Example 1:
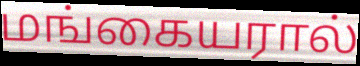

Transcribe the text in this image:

மங்கையரால்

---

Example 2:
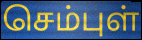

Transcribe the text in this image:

செம்புள்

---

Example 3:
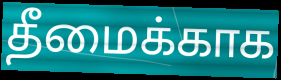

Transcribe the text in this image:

தீமைக்காக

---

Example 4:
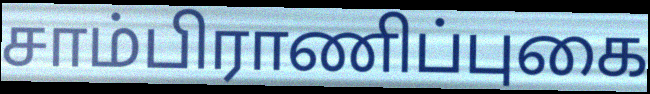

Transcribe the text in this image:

சாம்பிராணிப்புகை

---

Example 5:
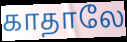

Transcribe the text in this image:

காதாலே